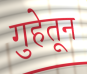
गुहेतून